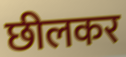
छीलकर